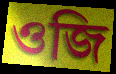
ওজি